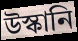
উস্কানি